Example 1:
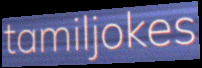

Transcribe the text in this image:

tamiljokes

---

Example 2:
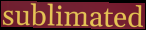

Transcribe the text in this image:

sublimated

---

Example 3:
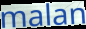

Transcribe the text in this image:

malan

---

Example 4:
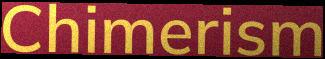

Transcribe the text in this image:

Chimerism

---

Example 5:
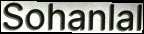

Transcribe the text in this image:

Sohanlal